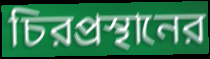
চিরপ্রস্থানের